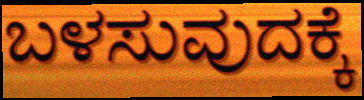
ಬಳಸುವುದಕ್ಕೆ